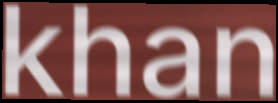
khan